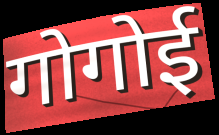
गोगोई